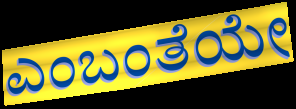
ಎಂಬಂತೆಯೇ